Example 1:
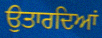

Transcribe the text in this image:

ਉਤਾਰਦਿਆਂ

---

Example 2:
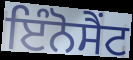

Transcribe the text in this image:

ਇੰਨੋਸੈਂਟ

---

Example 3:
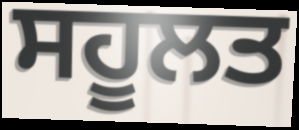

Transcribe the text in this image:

ਸਹੂਲਤ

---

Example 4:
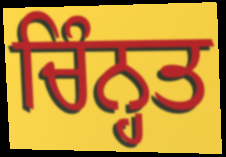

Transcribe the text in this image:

ਚਿੰਨ੍ਹਤ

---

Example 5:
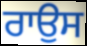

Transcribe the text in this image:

ਰਾਉਸ